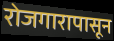
रोजगारापासून